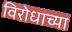
विरोधाच्या